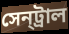
সেন্‌ট্রাল